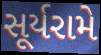
સૂર્યરામે